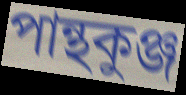
পান্থকুঞ্জ